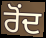
ਰੋਂਦ